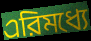
এরিমধ্যে